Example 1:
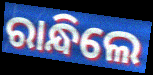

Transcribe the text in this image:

ରାନ୍ଧିଲେ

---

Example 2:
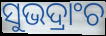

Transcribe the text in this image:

ସୁଭଦ୍ରାଂଚ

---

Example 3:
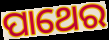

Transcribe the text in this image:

ପାଥେର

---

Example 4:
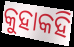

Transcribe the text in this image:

କୁହାକହି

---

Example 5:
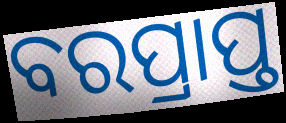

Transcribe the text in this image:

ବରପ୍ରାପ୍ତ